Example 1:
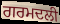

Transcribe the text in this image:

ਗਰਮਦਲੀ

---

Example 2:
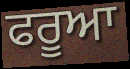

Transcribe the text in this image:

ਫਰੂਆ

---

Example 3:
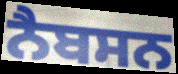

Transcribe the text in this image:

ਨੈਬਸਨ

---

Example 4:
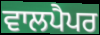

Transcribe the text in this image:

ਵਾਲਪੈਪਰ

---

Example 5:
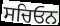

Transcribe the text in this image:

ਸਚਿਓਨ